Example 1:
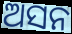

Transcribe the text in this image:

ଅସନ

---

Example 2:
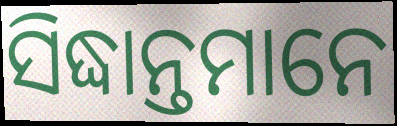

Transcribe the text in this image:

ସିଦ୍ଧାନ୍ତମାନେ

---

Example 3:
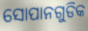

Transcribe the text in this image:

ସୋପାନଗୁଡିକ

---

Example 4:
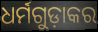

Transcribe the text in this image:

ଧର୍ମଗୁଡ଼ାକର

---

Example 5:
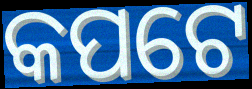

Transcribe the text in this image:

କପଟେ